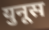
युनूस